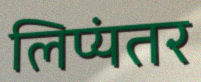
लिप्यंतर